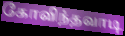
கோவிந்தவாடி